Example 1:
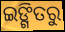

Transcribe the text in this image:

ଇଙ୍ଗିତରୁ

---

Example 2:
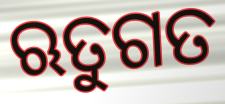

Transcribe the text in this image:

ଋତୁଗତ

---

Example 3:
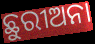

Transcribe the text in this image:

ଛୁରୀଅନା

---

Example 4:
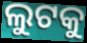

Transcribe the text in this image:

ଲୁଟକୁ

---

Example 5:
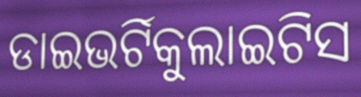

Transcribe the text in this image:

ଡାଇଭର୍ଟିକୁଲାଇଟିସ